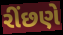
રીંછણે